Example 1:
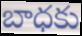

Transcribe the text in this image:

బాధకు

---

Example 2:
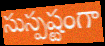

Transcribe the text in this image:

సుస్పష్టంగా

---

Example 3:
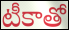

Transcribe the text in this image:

టీకాతో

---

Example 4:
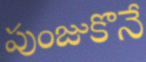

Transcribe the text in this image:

పుంజుకొనే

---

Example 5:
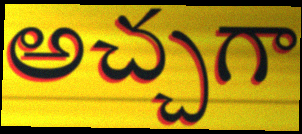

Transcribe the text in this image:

అచ్చగా